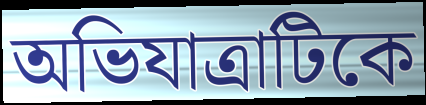
অভিযাত্রাটিকে